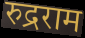
रुद्रराम